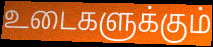
உடைகளுக்கும்